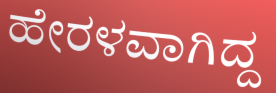
ಹೇರಳವಾಗಿದ್ದ